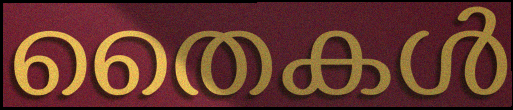
തൈകൾ